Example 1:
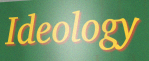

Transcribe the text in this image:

Ideology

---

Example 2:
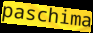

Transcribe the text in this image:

paschima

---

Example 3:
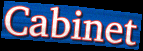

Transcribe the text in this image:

Cabinet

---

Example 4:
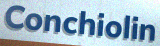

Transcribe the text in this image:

Conchiolin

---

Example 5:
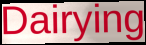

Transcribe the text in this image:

Dairying